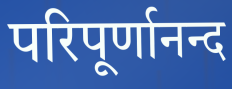
परिपूर्णानन्द